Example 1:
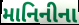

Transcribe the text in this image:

માનિનીના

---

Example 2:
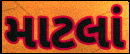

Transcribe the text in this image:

માટલાં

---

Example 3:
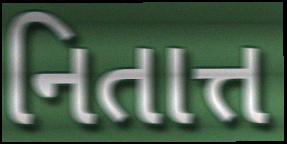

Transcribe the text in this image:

નિતાત્ત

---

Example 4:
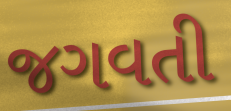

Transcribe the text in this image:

જગવતી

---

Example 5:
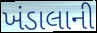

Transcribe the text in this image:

ખંડાલાની